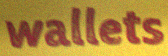
wallets